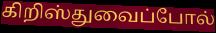
கிறிஸ்துவைப்போல்